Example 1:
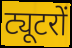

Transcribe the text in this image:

ट्यूटरों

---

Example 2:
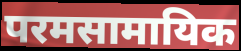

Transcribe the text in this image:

परमसामायिक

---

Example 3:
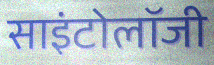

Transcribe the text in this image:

साइंटोलॉजी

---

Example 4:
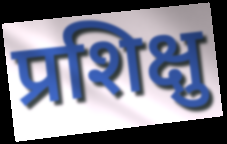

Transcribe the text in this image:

प्रशिक्षु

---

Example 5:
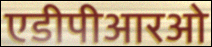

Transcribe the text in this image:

एडीपीआरओ